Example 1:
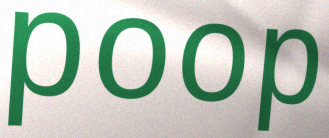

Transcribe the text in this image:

poop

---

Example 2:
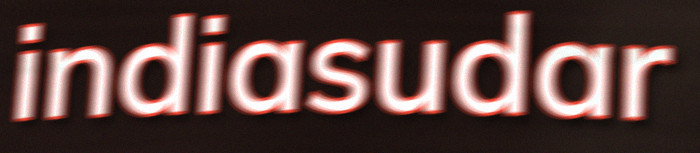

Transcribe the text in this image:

indiasudar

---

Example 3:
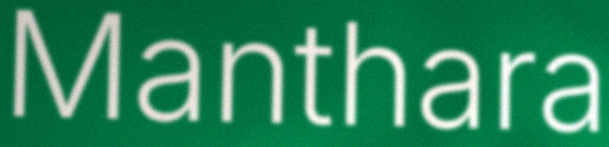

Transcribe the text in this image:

Manthara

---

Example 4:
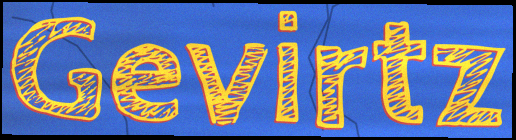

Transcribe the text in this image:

Gevirtz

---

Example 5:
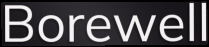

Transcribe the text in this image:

Borewell